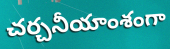
చర్చనీయాంశంగా